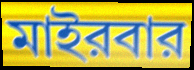
মাইরবার